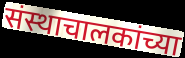
संस्थाचालकांच्या